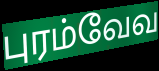
புரம்வேவ